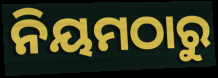
ନିୟମଠାରୁ